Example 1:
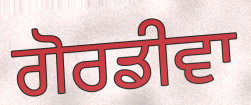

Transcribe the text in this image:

ਗੋਰਡੀਵਾ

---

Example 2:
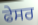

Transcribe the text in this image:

ਫੇਸਰ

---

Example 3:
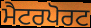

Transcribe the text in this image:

ਮੈਟਰਪੋਰਟ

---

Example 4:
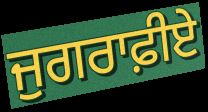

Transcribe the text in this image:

ਜੁਗਰਾਫ਼ੀਏ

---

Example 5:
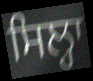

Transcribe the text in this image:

ਸਿਲ੍ਹਾ